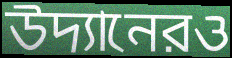
উদ্যানেরও